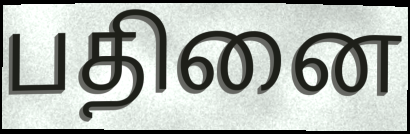
பதினை